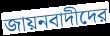
জায়নবাদীদের